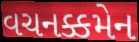
વચનક્કમેન